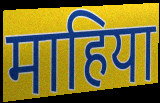
माहिया